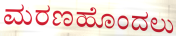
ಮರಣಹೊಂದಲು